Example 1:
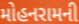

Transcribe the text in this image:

મોહનરામની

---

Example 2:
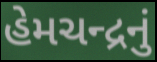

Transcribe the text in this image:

હેમચન્દ્રનું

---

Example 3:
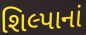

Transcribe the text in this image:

શિલ્પાનાં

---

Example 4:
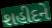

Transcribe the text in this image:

શહીદને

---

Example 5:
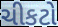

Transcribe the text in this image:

ચીકટો